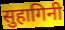
सुहागिनी